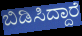
ಬಿಡಿಸಿದ್ದಾರೆ